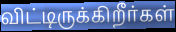
விட்டிருக்கிறீர்கள்